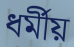
ধর্মীয়